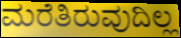
ಮರೆತಿರುವುದಿಲ್ಲ